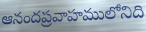
ఆనందప్రవాహములోనిది